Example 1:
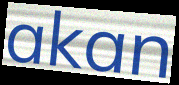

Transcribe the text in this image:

akan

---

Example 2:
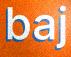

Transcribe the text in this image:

baj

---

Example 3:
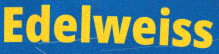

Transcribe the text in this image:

Edelweiss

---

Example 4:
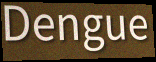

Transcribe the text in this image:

Dengue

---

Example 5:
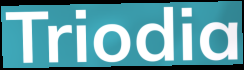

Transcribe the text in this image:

Triodia